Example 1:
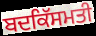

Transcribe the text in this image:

ਬਦਕਿੱਸਮਤੀ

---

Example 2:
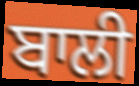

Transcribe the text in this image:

ਬਾਲੀ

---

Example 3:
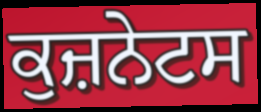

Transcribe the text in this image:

ਕੁਜ਼ਨੇਟਸ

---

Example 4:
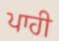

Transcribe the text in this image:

ਪਾਹੀ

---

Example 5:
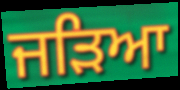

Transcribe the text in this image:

ਜੜਿਆ